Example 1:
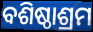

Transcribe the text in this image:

ବଶିଷ୍ଠାଶ୍ରମ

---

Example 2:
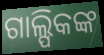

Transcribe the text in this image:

ଗାଲ୍ପିକଙ୍କ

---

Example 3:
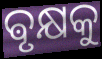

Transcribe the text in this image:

ଵୃକ୍ଷକୁ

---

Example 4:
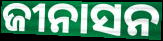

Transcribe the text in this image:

ଜୀନାସନ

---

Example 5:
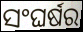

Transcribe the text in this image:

ସଂଘର୍ଷର